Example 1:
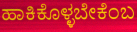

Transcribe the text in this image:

ಹಾಕಿಕೊಳ್ಳಬೇಕೆಂಬ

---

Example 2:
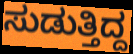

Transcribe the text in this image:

ಸುಡುತ್ತಿದ್ದ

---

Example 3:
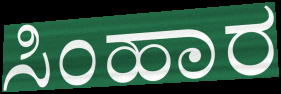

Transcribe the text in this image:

ಸಿಂಹಾರ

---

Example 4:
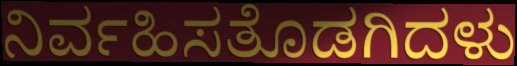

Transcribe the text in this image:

ನಿರ್ವಹಿಸತೊಡಗಿದಳು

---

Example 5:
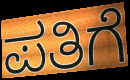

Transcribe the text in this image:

ಪತಿಗೆ